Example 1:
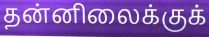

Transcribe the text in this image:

தன்னிலைக்குக்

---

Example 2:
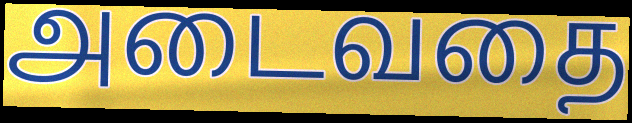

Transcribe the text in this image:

அடைவதை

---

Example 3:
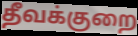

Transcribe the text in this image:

தீவக்குறை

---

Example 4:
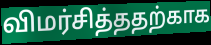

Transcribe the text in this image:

விமர்சித்ததற்காக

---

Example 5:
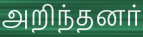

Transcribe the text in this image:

அறிந்தனர்